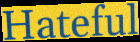
Hateful